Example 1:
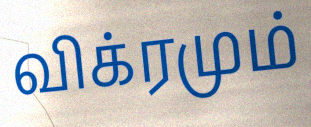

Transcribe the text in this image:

விக்ரமும்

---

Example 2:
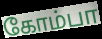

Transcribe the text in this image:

கோம்பா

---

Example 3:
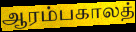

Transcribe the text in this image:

ஆரம்பகாலத்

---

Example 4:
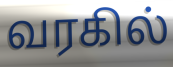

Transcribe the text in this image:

வரகில்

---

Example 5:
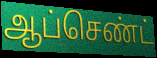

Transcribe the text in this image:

ஆப்செண்ட்